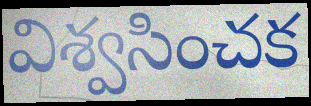
విశ్వసించక